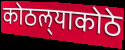
कोठल्याकोठे